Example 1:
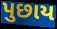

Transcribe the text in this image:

પુછાય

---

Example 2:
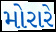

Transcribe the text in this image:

મોરારે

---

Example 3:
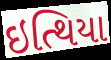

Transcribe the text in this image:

ઇત્થિયા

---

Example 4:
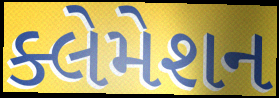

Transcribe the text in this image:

ક્લેમેશન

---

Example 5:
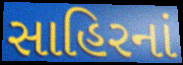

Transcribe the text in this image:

સાહિરનાં